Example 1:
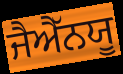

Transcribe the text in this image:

ਜੈਐੱਨਯੂ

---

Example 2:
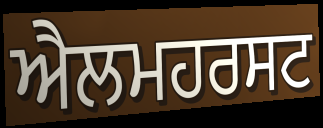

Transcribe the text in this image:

ਐਲਮਹਰਸਟ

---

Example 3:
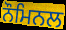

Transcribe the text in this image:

ਨੌਮਿਨਲ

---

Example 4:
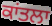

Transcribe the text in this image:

ਕਾਂਤਲਾ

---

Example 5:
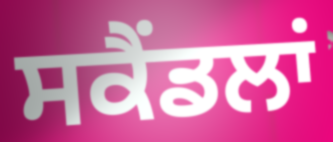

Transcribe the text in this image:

ਸਕੈਂਡਲਾਂ